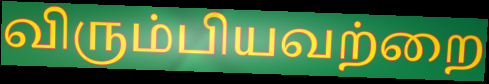
விரும்பியவற்றை